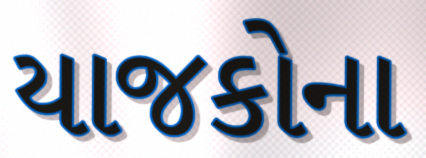
યાજકોના